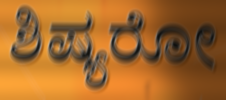
ಶಿಷ್ಯರೋ